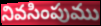
నివసింపుము